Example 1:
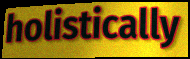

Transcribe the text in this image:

holistically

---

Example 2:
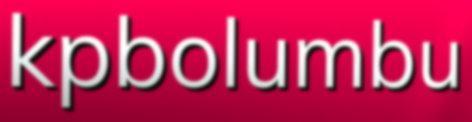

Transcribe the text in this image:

kpbolumbu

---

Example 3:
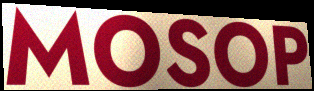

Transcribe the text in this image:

MOSOP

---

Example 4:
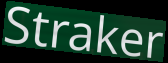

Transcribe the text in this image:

Straker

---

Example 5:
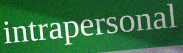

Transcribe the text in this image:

intrapersonal